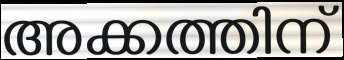
അക്കത്തിന്